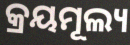
କ୍ରୟମୂଲ୍ୟ